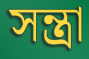
সন্ত্রা